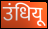
उंधियू